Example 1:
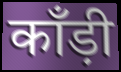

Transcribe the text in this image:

काँड़ी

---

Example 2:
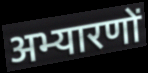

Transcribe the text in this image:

अभ्यारणों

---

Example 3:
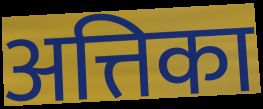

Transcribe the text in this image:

अत्तिका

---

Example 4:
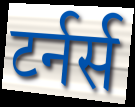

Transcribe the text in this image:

टर्नर्स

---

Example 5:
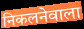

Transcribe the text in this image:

निकलनेवाला